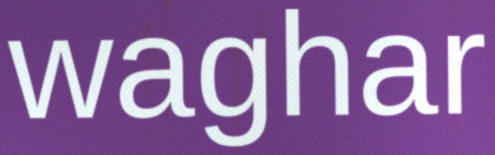
waghar